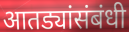
आतड्यांसंबंधी